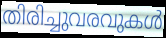
തിരിച്ചുവരവുകൾ